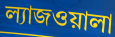
ল্যাজওয়ালা